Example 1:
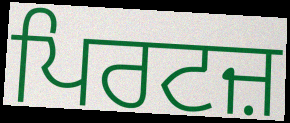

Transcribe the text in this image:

ਪਿਰਟਜ਼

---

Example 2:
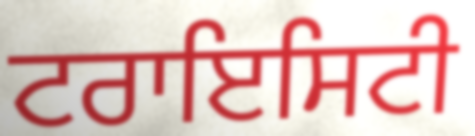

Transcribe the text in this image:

ਟਰਾਇਸਿਟੀ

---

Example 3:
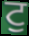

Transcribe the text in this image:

ਟੁ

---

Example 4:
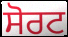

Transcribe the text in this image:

ਸੋਰਟ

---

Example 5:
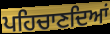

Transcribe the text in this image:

ਪਹਿਚਾਣਦਿਆਂ